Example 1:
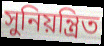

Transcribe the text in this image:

সুনিয়ন্ত্ৰিত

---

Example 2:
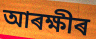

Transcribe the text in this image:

আৰক্ষীৰ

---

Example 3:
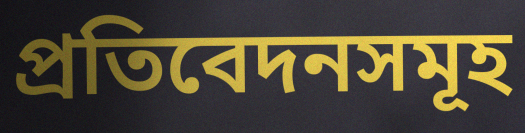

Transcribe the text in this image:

প্ৰতিবেদনসমূহ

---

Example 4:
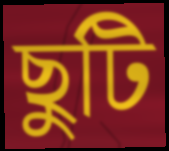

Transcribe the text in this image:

ছুটি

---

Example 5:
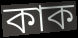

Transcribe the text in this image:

কাক